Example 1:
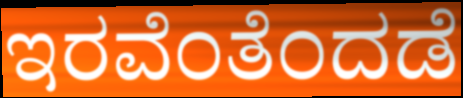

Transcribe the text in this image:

ಇರವೆಂತೆಂದಡೆ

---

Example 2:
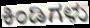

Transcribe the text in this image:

ಕಿಂಡಿಗಳು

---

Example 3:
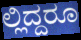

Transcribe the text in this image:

ಲ್ಲಿದ್ದರೂ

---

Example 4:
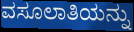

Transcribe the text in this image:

ವಸೂಲಾತಿಯನ್ನು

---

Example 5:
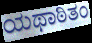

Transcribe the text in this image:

ಯಥಾಠಿತಂ